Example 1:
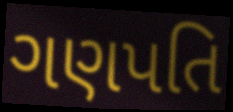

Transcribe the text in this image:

ગણપતિ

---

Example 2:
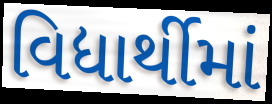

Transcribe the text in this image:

વિદ્યાર્થીમાં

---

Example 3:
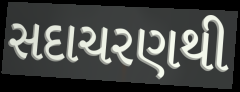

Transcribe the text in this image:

સદાચરણથી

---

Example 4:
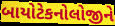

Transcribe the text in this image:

બાયોટેકનોલોજીને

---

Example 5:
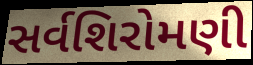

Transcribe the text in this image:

સર્વશિરોમણી